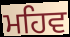
ਮਹਿਵ